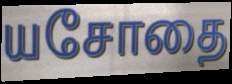
யசோதை